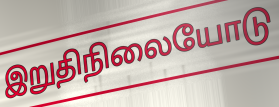
இறுதிநிலையோடு